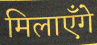
मिलाएँगे